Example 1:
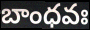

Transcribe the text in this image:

బాంధవః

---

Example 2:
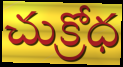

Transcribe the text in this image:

చుక్రోధ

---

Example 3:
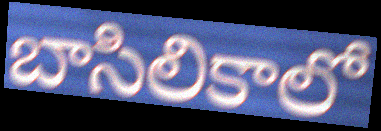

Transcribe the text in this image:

బాసిలికాలో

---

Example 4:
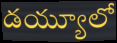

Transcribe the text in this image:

డయ్యూలో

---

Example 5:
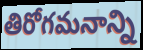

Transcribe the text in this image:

తిరోగమనాన్ని